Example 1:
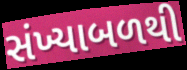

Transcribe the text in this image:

સંખ્યાબળથી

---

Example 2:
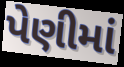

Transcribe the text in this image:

પેણીમાં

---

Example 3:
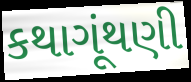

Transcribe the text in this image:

કથાગૂંથણી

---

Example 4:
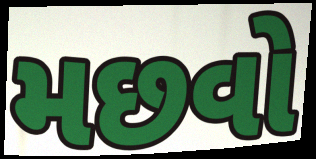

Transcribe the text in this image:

મછવો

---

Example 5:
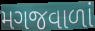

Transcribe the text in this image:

મગજવાળાં